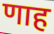
णाह